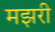
मझरी